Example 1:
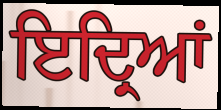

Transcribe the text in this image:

ਇਦ੍ਰਿਆਂ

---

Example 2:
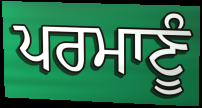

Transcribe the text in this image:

ਪਰਮਾਣੂੰ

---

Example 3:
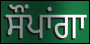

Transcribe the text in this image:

ਸੌਂਪਾਂਗਾ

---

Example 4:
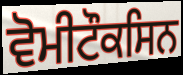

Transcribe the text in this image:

ਵੋਮੀਟੌਕਸਿਨ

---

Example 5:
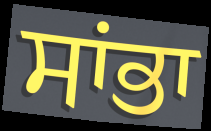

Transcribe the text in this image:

ਸਾਂਭਾ